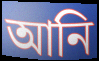
আনি